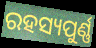
ରହସ୍ୟପୁର୍ଣ୍ଣ